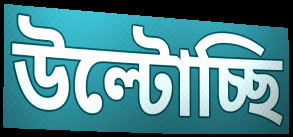
উল্টোচ্ছি